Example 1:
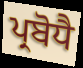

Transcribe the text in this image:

ਪ੍ਰਬੋਧੈ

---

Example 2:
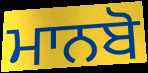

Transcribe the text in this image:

ਮਾਨਬੋ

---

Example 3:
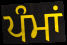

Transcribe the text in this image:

ਪੰਮਾਂ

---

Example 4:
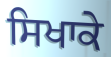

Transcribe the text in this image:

ਸਿਖਾਕੇ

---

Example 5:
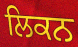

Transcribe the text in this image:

ਲਿਕਨ